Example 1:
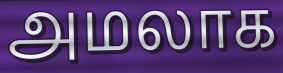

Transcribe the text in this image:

அமலாக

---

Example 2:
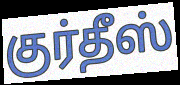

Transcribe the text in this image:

குர்தீஸ்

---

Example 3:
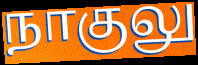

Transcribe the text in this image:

நாகுலு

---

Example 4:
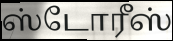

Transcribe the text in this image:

ஸ்டோரீஸ்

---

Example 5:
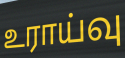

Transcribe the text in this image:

உராய்வு